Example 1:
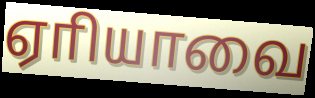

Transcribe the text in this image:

ஏரியாவை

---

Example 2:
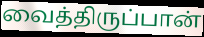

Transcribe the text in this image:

வைத்திருப்பான்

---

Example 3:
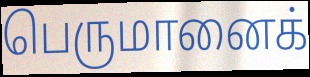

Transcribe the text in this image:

பெருமானைக்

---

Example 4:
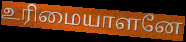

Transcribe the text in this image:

உரிமையாளனே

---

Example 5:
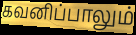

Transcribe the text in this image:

கவனிப்பாலும்